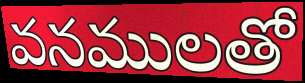
వనములతో